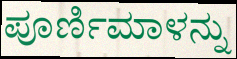
ಪೂರ್ಣಿಮಾಳನ್ನು